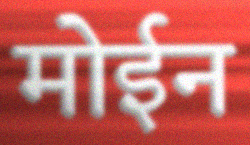
मोईन